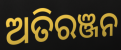
ଅତିରଞ୍ଜନ